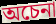
অচেনা